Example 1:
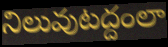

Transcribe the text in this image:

నిలువుటద్దంలా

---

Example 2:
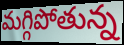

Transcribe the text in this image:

మగ్గిపోతున్న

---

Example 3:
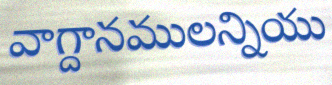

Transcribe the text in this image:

వాగ్దానములన్నియు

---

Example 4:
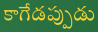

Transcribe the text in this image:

కాగేడప్పుడు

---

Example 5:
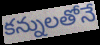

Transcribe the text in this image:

కన్నులతోనే